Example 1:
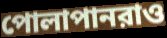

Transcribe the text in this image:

পোলাপানরাও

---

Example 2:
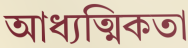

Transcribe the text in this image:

আধ্যত্মিকতা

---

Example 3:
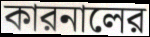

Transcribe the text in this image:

কারনালের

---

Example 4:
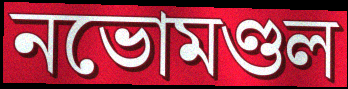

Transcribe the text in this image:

নভোমণ্ডল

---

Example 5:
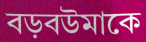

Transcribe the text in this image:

বড়বউমাকে